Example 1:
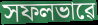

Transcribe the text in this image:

সফলভাৱে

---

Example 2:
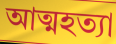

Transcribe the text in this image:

আত্মহত্যা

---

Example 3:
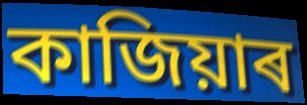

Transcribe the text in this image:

কাজিয়াৰ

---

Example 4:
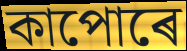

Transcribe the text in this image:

কাপোৰে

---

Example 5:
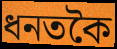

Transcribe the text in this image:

ধনতকৈ